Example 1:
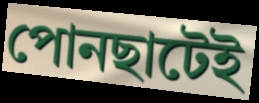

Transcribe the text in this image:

পোনছাটেই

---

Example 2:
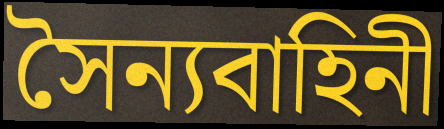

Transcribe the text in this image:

সৈন্যবাহিনী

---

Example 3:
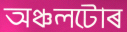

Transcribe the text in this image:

অঞ্চলটোৰ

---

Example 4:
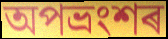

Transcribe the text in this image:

অপভ্ৰংশৰ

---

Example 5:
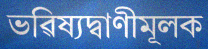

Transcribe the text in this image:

ভৱিষ্যদ্বাণীমূলক